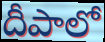
దీపాలో